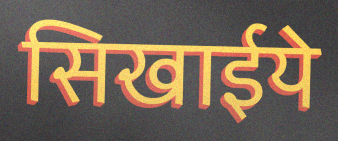
सिखाईये